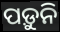
ପଡ଼ୁନି